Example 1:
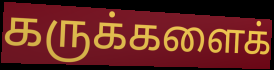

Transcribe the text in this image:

கருக்களைக்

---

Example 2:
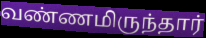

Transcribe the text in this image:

வண்ணமிருந்தார்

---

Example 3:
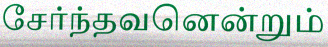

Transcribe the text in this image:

சேர்ந்தவனென்றும்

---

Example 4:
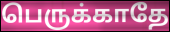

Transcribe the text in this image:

பெருக்காதே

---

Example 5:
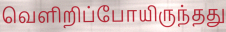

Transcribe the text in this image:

வெளிறிப்போயிருந்தது